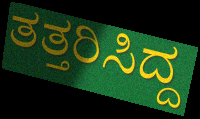
ತತ್ತರಿಸಿದ್ದ